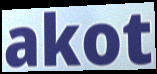
akot